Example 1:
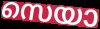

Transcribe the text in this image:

സെയാ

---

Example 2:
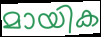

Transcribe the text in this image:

മായിക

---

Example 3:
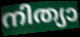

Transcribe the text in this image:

നിത്യാ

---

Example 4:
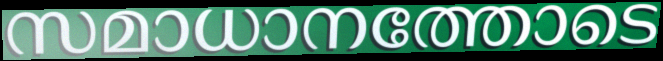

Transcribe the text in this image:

സമാധാനത്തോടെ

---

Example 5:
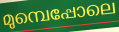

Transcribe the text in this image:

മുമ്പെപ്പോലെ